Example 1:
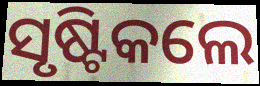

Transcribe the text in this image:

ସୃଷ୍ଟିକଲେ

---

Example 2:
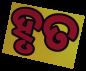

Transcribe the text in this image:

ହୃତ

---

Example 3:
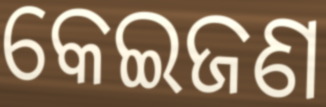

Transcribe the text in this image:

କେଇଜଣ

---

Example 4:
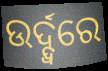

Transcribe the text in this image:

ଉର୍ଦ୍ଦ୍ୱରେ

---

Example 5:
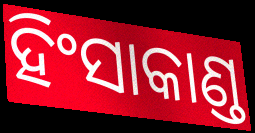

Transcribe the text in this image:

ହିଂସାକାଣ୍ଡ